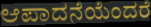
ಆಪಾದನೆಯೆಂದರೆ